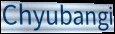
Chyubangi